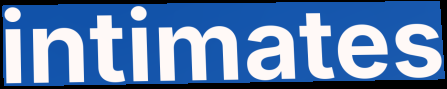
intimates